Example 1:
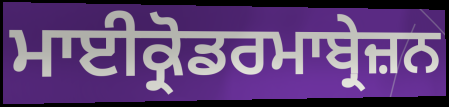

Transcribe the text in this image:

ਮਾਈਕ੍ਰੋਡਰਮਾਬ੍ਰੇਜ਼ਨ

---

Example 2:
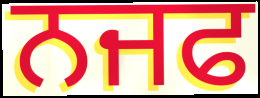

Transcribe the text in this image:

ਨਜਫ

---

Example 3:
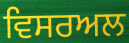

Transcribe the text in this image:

ਵਿਸਰਅਲ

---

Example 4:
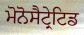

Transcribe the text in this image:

ਮੋਨੋਸੈਟ੍ਰੇਟਿਡ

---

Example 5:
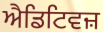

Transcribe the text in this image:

ਐਡਿਟਿਵਜ਼